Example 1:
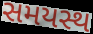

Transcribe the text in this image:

સમયસ્થ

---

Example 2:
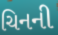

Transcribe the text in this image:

ચિનની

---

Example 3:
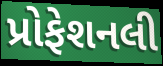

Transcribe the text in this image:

પ્રોફેશનલી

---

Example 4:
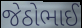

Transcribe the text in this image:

જેઠોભાઈ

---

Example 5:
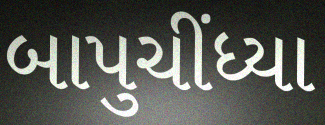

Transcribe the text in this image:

બાપુચીંધ્યા